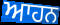
ਆਹਨ